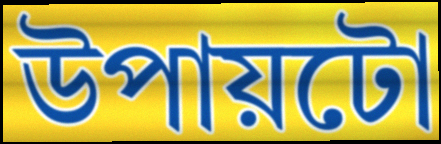
উপায়টো